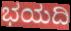
ಭಯದಿ